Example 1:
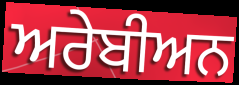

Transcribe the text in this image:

ਅਰੇਬੀਅਨ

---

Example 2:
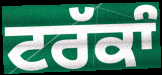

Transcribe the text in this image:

ਟਰੱਕਾੰ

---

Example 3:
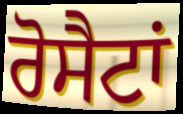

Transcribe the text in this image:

ਰੋਸੈਟਾਂ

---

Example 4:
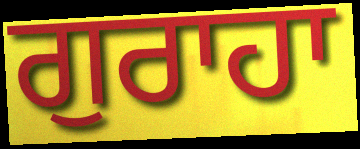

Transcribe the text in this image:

ਗੁਰਾਹਾ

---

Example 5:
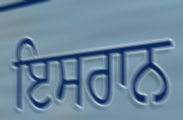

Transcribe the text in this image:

ਇਸਰਾਨ